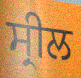
ਸ੍ਰੀਲ